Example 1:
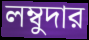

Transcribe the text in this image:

লম্বুদার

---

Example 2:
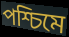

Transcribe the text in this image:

পশ্চিমে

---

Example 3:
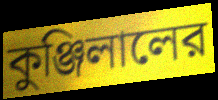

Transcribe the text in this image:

কুঞ্জিলালের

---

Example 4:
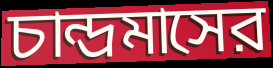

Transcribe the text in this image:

চান্দ্রমাসের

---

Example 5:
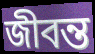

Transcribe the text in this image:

জীবন্ত